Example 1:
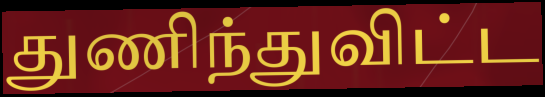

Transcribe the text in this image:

துணிந்துவிட்ட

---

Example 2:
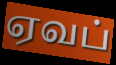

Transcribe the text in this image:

ஏவப்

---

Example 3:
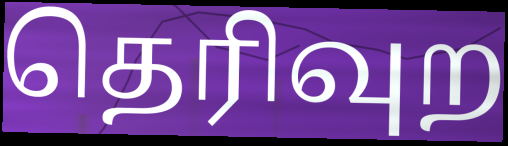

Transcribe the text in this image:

தெரிவுற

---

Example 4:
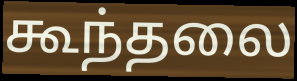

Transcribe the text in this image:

கூந்தலை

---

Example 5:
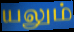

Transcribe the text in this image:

யலும்